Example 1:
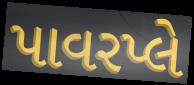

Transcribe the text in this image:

પાવરપ્લે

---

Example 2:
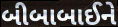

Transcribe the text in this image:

બીબાબાઈને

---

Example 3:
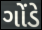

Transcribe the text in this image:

ગોંડે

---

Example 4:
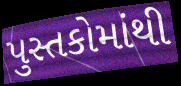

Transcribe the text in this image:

પુસ્તકોમાંથી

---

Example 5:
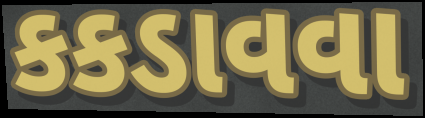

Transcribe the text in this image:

કકડાવવા